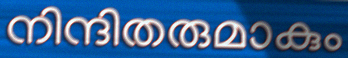
നിന്ദിതരുമാകും